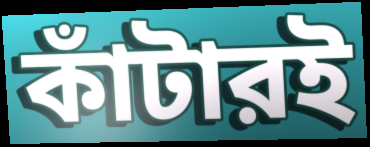
কাঁটারই